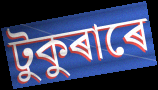
টুকুৰাৰে